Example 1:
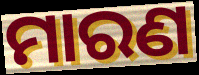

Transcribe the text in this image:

ମାରଣ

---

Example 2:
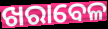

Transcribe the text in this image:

ଖରାବେଳ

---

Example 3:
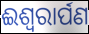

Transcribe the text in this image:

ଈଶ୍ୱରାର୍ପଣ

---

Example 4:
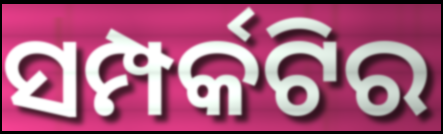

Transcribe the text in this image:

ସମ୍ପର୍କଟିର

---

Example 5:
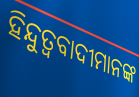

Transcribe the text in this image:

ହିନ୍ଦୁତ୍ଵବାଦୀମାନଙ୍କ